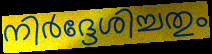
നിർദ്ദേശിച്ചതും